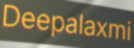
Deepalaxmi